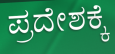
ಪ್ರದೇಶಕ್ಕೆ